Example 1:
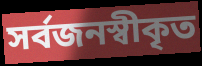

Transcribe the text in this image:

সর্বজনস্বীকৃত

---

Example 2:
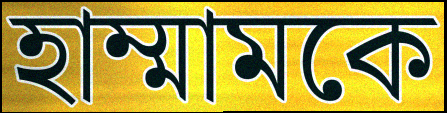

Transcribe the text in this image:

হাম্মামকে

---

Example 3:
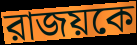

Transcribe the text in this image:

রাজয়কে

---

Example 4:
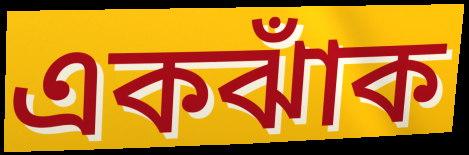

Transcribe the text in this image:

একঝাঁক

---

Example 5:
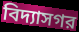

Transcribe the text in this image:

বিদ্যাসগর